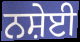
ਨਸ਼ੇਈ